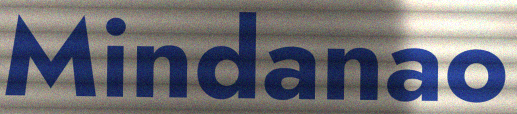
Mindanao